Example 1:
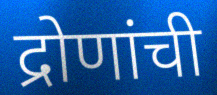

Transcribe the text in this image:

द्रोणांची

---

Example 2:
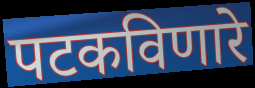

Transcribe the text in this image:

पटकविणारे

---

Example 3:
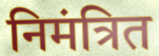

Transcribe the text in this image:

निमंत्रित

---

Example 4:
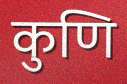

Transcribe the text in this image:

कुणि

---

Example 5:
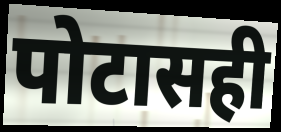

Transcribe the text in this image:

पोटासही